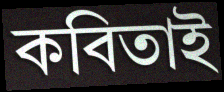
কবিতাই